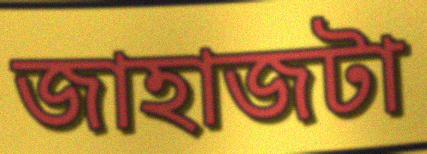
জাহাজটা